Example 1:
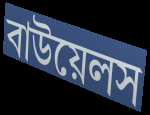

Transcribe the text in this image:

বাউয়েলস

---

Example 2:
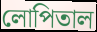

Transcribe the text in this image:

লোপিতাল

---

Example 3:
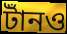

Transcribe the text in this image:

টাঁনও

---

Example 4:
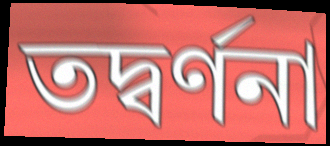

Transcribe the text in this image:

তদ্বর্ণনা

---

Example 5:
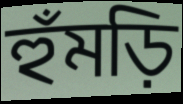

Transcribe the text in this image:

হুঁমড়ি